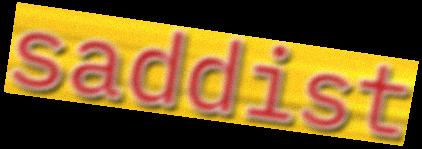
saddist